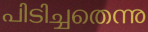
പിടിച്ചതെന്നു